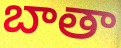
బాతా